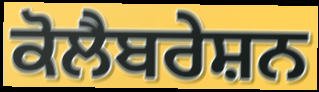
ਕੋਲੈਬਰੇਸ਼ਨ